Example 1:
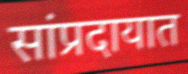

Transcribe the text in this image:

सांप्रदायात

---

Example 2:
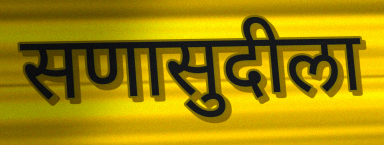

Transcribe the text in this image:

सणासुदीला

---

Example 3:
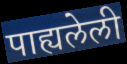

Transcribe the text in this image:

पाह्यलेली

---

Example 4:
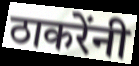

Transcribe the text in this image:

ठाकरेंनी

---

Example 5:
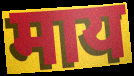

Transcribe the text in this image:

माय